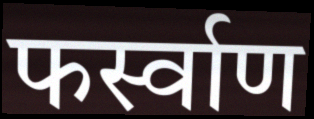
फर्स्वाण